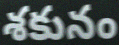
శకునం